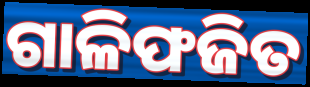
ଗାଳିଫଜିତ